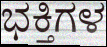
ಭಕ್ತಿಗಳ